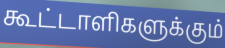
கூட்டாளிகளுக்கும்